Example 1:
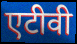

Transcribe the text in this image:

एटीवी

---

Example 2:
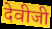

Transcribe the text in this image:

देवीजी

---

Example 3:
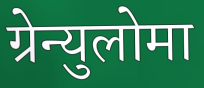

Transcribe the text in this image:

ग्रेन्युलोमा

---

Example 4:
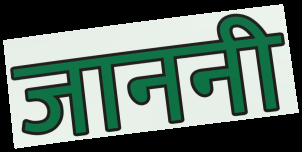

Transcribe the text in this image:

जाननी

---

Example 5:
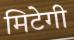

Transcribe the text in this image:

मिटेगी